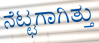
ನೆಟ್ಟಗಾಗಿತ್ತು